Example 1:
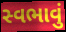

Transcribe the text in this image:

સ્વભાવું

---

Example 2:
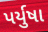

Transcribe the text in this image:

પર્યુષા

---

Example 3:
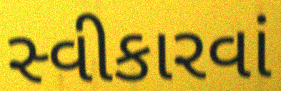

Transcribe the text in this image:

સ્વીકારવાં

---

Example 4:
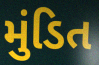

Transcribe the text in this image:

મુંડિત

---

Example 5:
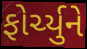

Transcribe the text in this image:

ફોર્ચ્યુને